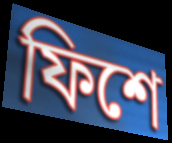
ফিশে